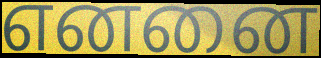
எனனை